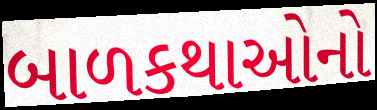
બાળકથાઓનો